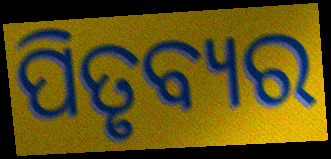
ପିତୃବ୍ୟର